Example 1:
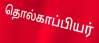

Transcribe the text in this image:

தொல்காப்பியர்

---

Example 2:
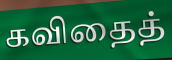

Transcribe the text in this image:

கவிதைத்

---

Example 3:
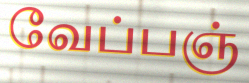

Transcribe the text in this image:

வேப்பஞ்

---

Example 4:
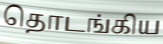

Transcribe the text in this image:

தொடங்கிய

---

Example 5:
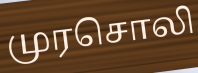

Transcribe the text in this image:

முரசொலி